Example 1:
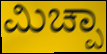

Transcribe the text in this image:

ಮಿಚ್ಪಾ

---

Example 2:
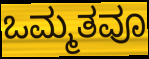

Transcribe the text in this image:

ಒಮ್ಮತವೂ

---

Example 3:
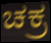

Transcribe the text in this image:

ಚಕ್ರ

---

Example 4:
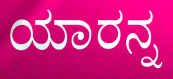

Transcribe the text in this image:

ಯಾರನ್ನ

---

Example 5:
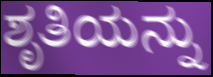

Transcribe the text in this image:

ಶೃತಿಯನ್ನು